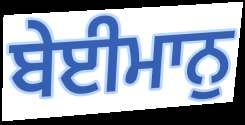
ਬੇਈਮਾਨੁ